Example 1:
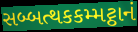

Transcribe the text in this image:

સબ્બત્થકકમ્મટ્ઠાનં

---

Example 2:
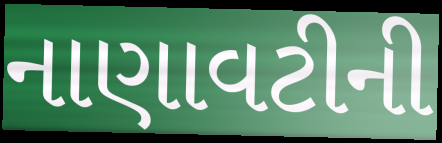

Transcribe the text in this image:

નાણાવટીની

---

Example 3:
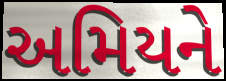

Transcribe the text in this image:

અમિયને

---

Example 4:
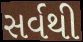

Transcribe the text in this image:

સર્વથી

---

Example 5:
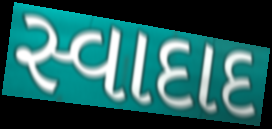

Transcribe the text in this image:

સ્વાદાદ